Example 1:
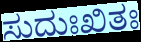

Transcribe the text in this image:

ಸುದುಃಖಿತಃ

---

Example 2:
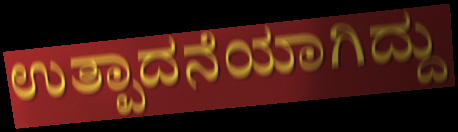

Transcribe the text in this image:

ಉತ್ಪಾದನೆಯಾಗಿದ್ದು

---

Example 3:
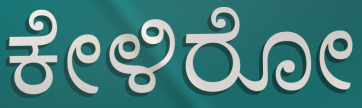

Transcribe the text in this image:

ಕೇಳಿರೋ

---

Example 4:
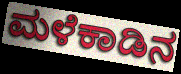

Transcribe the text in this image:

ಮಳೆಕಾಡಿನ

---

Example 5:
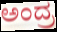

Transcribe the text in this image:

ಅಂದ್ರ